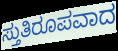
ಸ್ತುತಿರೂಪವಾದ